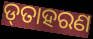
ଡ୍‌ତାହରଣ